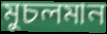
মুচলমান